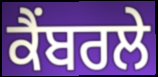
ਕੈਂਬਰਲੇ